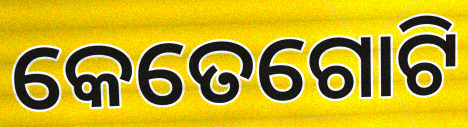
କେତେଗୋଟି